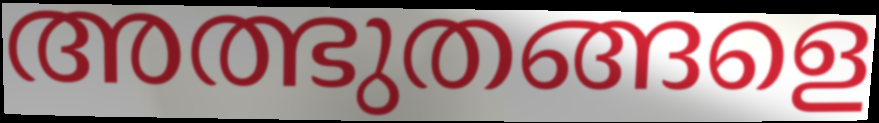
അത്ഭുതങ്ങളെ